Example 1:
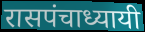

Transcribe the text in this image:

रासपंचाध्यायी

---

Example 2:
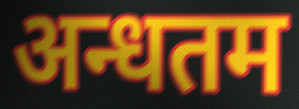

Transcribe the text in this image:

अन्धतम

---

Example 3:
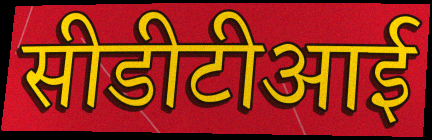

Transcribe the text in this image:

सीडीटीआई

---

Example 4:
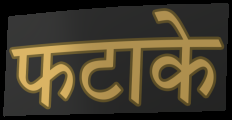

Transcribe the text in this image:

फटाके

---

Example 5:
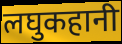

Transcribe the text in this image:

लघुकहानी